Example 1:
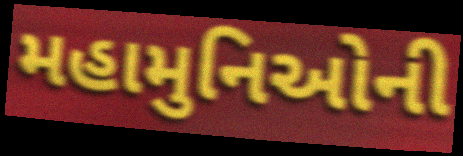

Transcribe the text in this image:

મહામુનિઓની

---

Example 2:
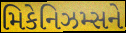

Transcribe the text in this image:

મિકેનિઝમ્સને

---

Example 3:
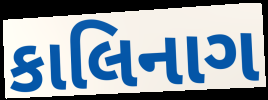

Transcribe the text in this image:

કાલિનાગ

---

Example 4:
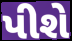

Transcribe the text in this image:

પીશે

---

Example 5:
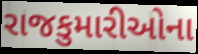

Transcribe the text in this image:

રાજકુમારીઓના